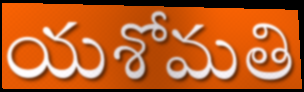
యశోమతి